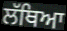
ਲੱਥਿਆ